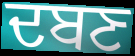
ਦਬਣ